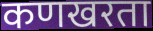
कणखरता